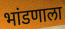
भांडणाला